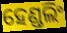
ହେଣ୍ଡଲିଂ